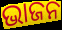
ଭାଜନ